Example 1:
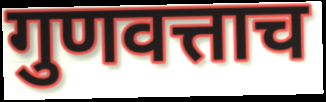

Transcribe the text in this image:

गुणवत्ताच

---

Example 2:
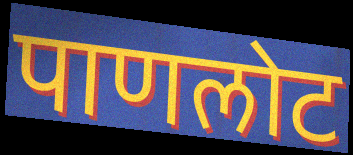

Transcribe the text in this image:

पाणलोट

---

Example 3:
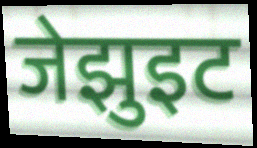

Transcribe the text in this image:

जेझुइट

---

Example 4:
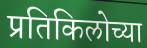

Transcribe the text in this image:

प्रतिकिलोच्या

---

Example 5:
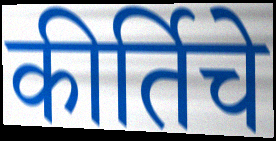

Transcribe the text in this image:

कीर्तिचे